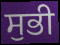
ਸੁਭੀ